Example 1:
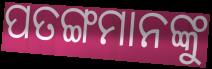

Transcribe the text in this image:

ପତଙ୍ଗମାନଙ୍କୁ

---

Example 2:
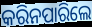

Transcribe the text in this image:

କରିନପାରିଲେ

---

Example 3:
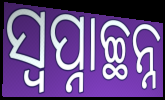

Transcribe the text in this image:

ସ୍ଵପ୍ନାଚ୍ଛନ୍ନ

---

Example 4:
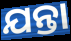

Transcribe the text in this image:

ଯନ୍ତା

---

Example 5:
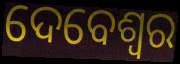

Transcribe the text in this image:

ଦେବେଶ୍ୱର